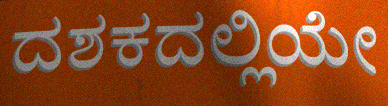
ದಶಕದಲ್ಲಿಯೇ